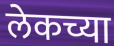
लेकच्या